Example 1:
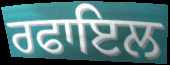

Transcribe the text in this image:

ਰਫਾਇਲ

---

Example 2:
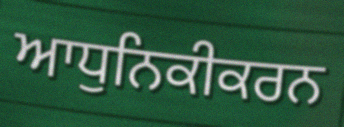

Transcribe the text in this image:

ਆਧੁਨਿਕੀਕਰਨ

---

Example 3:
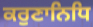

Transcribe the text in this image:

ਕਰੁਣਾਨਿਧਿ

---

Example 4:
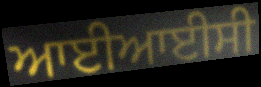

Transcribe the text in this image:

ਆਈਆਈਸੀ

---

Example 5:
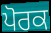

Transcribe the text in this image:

ਪੋਰਕ